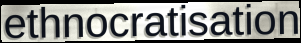
ethnocratisation